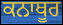
ਕਨਾਥੂਰ